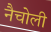
नैचोली